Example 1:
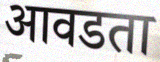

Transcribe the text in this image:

आवडता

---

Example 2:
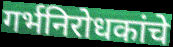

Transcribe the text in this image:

गर्भनिरोधकांचे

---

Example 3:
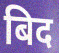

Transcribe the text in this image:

बिद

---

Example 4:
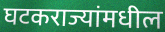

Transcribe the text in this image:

घटकराज्यांमधील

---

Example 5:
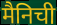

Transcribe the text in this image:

मैनिची